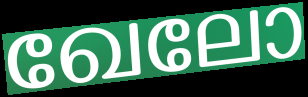
ഖേലോ